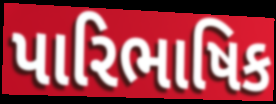
પારિભાષિક